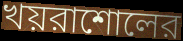
খয়রাশোলের